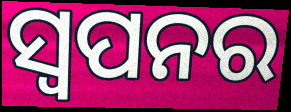
ସ୍ୱପନର